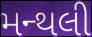
મન્થલી